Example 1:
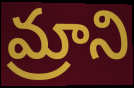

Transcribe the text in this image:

మ్రాని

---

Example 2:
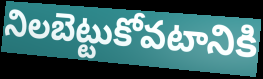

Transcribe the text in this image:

నిలబెట్టుకోవటానికి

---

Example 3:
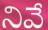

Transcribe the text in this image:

నివే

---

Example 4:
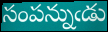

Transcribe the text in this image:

సంపన్నుఁడు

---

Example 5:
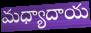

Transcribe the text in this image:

మధ్యాదాయ